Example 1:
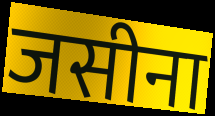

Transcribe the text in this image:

जसीना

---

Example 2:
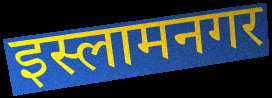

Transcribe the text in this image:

इस्लामनगर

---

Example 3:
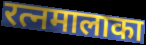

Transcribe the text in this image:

रत्नमालाका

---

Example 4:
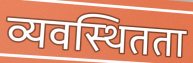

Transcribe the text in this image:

व्यवस्थितता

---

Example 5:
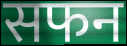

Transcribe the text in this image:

सफन